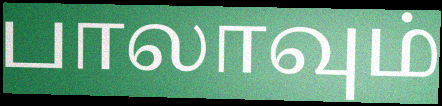
பாலாவும்